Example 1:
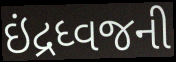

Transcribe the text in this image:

ઇંદ્રધ્વજની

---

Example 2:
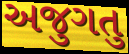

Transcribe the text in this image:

અજુગતુ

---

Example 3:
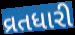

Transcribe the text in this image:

વ્રતધારી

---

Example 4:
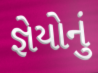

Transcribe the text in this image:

જ્ઞેયોનું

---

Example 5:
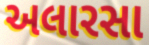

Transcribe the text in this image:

અલારસા